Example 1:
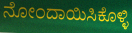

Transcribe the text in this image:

ನೋಂದಾಯಿಸಿಕೊಳ್ಳಿ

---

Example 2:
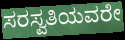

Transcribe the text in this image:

ಸರಸ್ವತಿಯವರೇ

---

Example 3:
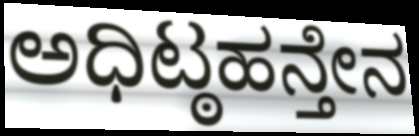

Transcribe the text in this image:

ಅಧಿಟ್ಠಹನ್ತೇನ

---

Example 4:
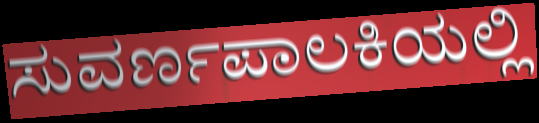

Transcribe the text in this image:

ಸುವರ್ಣಪಾಲಕಿಯಲ್ಲಿ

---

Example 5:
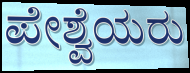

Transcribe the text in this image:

ಪೇಶ್ವೆಯರು